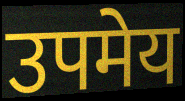
उपमेय